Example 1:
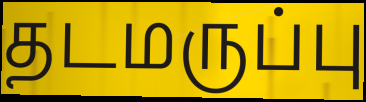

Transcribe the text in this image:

தடமருப்பு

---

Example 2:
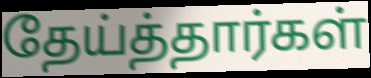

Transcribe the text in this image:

தேய்த்தார்கள்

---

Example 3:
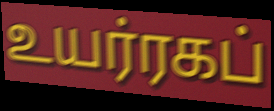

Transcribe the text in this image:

உயர்ரகப்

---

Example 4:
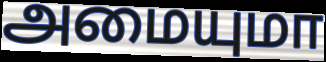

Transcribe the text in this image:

அமையுமா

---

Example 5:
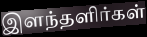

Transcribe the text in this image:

இளந்தளிர்கள்